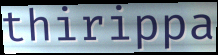
thirippa